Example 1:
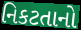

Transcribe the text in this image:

નિકટતાનો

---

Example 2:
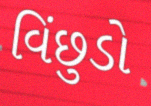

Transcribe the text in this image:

વિંછુડો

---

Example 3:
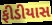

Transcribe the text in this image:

ફીડીયાસ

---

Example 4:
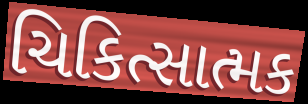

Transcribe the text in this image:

ચિકિત્સાત્મક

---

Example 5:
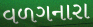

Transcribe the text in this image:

વળગનારા